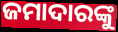
ଜମାଦାରଙ୍କୁ